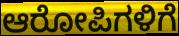
ಆರೋಪಿಗಳಿಗೆ